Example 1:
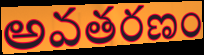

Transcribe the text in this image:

అవతరణం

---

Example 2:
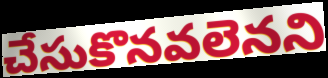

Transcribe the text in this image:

చేసుకొనవలెనని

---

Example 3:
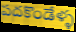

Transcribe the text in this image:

పదకొండేళ్ళ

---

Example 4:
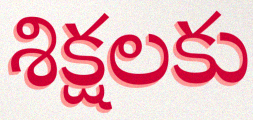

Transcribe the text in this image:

శిక్షలకు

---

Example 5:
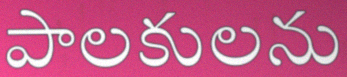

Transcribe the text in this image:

పాలకులను